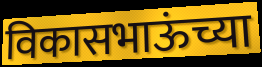
विकासभाऊंच्या